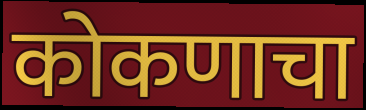
कोकणाचा